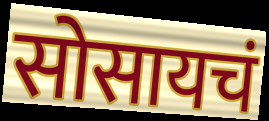
सोसायचं